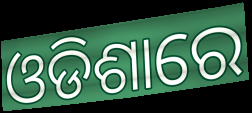
ଓଡିଶାରେ